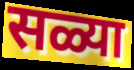
सळ्या